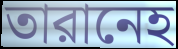
তারানেহ